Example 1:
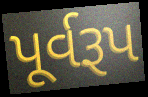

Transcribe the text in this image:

પૂર્વરૂપ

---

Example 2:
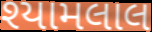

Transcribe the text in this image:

શ્યામલાલ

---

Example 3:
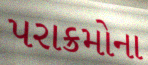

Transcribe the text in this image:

પરાક્રમોના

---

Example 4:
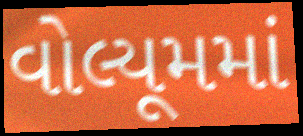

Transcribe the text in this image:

વોલ્યૂમમાં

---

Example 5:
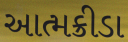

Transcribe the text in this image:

આત્મક્રીડા